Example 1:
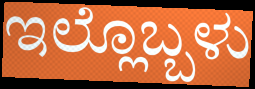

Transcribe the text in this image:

ಇಲ್ಲೊಬ್ಬಳು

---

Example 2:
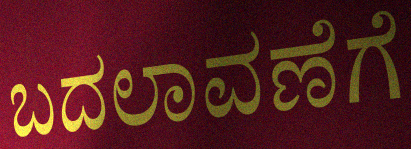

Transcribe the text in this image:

ಬದಲಾವಣೆಗೆ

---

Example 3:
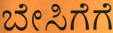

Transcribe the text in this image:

ಬೇಸಿಗೆಗೆ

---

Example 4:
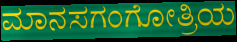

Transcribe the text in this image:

ಮಾನಸಗಂಗೋತ್ರಿಯ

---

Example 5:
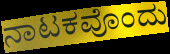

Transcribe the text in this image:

ನಾಟಕವೊಂದು